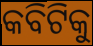
କବିଟିକୁ